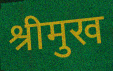
श्रीमुख